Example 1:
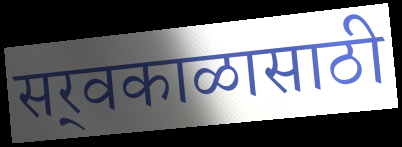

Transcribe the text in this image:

सर्वकाळासाठी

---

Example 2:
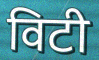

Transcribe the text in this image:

विटी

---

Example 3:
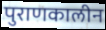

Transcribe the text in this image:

पुराणकालीन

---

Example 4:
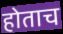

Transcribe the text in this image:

होताच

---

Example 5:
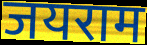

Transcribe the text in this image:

जयराम